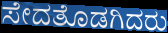
ಸೇದತೊಡಗಿದರು